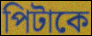
পিটাকে